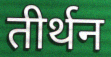
तीर्थन